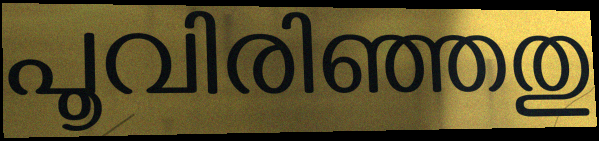
പൂവിരിഞ്ഞതു